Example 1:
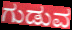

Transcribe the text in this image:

ಗುಡುವ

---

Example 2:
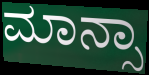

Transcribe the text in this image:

ಮಾನ್ಸಾ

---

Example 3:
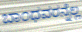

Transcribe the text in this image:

ಬಾಂಧವರನ್ನೆಲ್ಲ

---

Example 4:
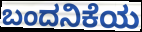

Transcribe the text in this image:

ಬಂದನಿಕೆಯ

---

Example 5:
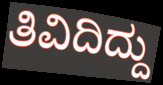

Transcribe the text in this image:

ತಿವಿದಿದ್ದು